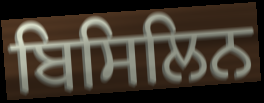
ਬਿਸਿਲਿਨ